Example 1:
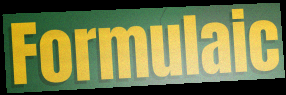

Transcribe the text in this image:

Formulaic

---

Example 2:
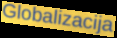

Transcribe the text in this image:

Globalizacija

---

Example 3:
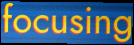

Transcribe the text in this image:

focusing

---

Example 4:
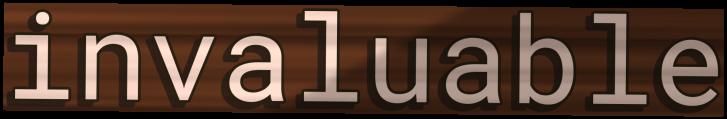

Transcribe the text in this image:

invaluable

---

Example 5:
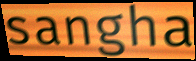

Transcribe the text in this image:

sangha